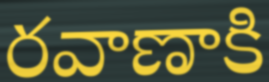
రవాణాకి